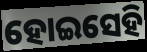
ହୋଇସେହି